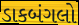
ડાકબંગલો